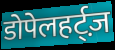
डोपेलहर्ट्ज़